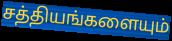
சத்தியங்களையும்